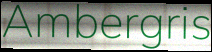
Ambergris